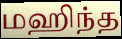
மஹிந்த